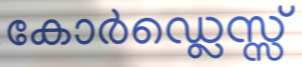
കോർഡ്ലെസ്സ്